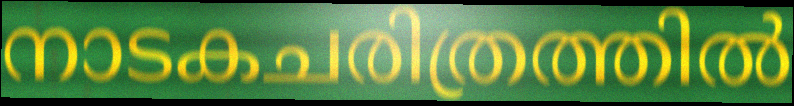
നാടകചരിത്രത്തിൽ